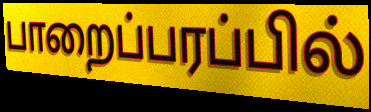
பாறைப்பரப்பில்